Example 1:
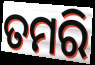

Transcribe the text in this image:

ତମରି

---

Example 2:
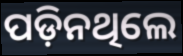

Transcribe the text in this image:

ପଡ଼ିନଥିଲେ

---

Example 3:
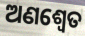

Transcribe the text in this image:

ଅଣଶ୍ୱେତ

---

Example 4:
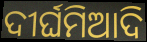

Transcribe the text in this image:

ଦୀର୍ଘମିଆଦି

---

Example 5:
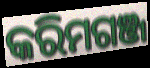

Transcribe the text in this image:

କରିମଗଞ୍ଜ